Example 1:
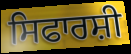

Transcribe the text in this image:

ਸਿਫਾਰਸ਼ੀ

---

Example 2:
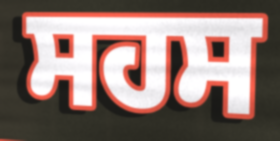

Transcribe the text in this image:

ਸਹਸ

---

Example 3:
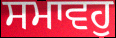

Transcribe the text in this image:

ਸਮਾਵਹੁ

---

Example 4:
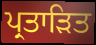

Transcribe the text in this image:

ਪ੍ਰਤਾੜਿਤ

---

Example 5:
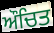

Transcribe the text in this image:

ਔਚਿਤ